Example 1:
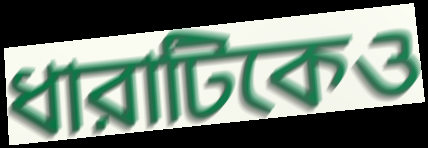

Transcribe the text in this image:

ধারাটিকেও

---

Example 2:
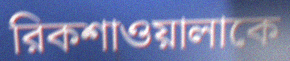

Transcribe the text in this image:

রিকশাওয়ালাকে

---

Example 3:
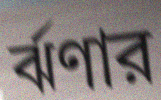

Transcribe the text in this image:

র্ঝণার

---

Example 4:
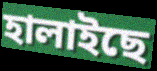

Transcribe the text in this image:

হালাইছে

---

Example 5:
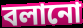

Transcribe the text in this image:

বলানো